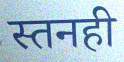
स्तनही